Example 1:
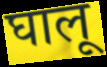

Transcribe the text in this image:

घालू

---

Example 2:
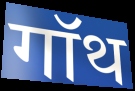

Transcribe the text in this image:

गॉथ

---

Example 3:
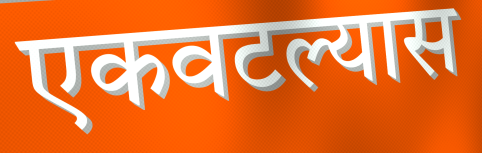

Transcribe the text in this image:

एकवटल्यास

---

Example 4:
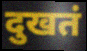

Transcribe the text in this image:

दुखतं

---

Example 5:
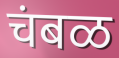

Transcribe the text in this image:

चंबळ